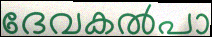
ദേവകൽപാ